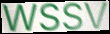
WSSV